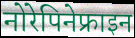
नोरेपिनेफ्राइन